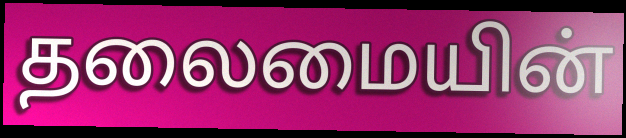
தலைமையின்